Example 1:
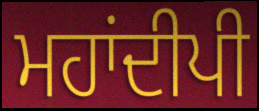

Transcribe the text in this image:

ਮਹਾਂਦੀਪੀ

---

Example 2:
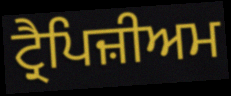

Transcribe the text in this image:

ਟ੍ਰੈਪਿਜ਼ੀਅਮ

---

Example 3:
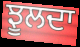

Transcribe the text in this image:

ਝੂਲਦਾ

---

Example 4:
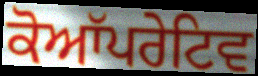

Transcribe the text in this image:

ਕੋਆੱਪਰੇਟਿਵ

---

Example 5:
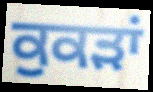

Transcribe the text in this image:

ਕੁਕੜਾਂ